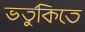
ভর্তুকিতে